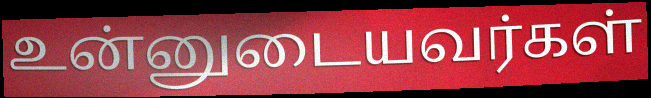
உன்னுடையவர்கள்